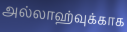
அல்லாஹ்வுக்காக